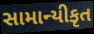
સામાન્યીકૃત